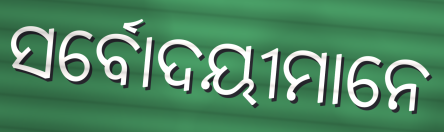
ସର୍ବୋଦୟୀମାନେ